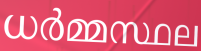
ധർമ്മസ്ഥല